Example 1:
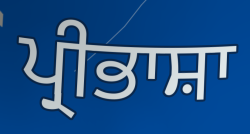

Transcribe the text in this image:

ਪ੍ਰੀਭਾਸ਼ਾ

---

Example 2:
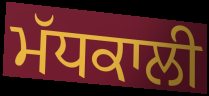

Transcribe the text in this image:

ਮੱਧਕਾਲੀ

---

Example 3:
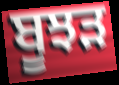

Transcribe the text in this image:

ਬੂਝੜ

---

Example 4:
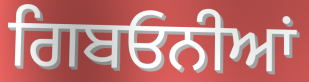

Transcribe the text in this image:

ਗਿਬਓਨੀਆਂ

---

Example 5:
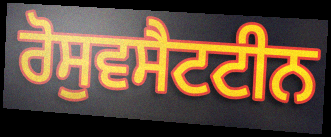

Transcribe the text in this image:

ਰੋਸੁਵਸੈਟਟੀਨ